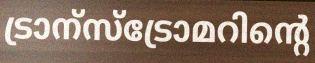
ട്രാന്സ്ട്രോമറിന്റെ